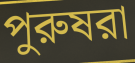
পুরুষরা